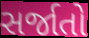
સર્જાતો